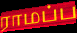
ராமப்ப